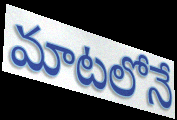
మాటలోనే